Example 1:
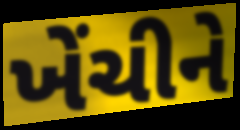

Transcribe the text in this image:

ખેંચીને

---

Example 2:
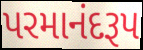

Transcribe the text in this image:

પરમાનંદરૂપ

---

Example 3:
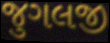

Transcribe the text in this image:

જુગલજી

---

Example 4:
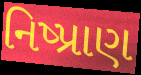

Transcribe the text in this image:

નિષ્પ્રાણ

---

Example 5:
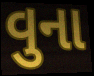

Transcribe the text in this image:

વુના